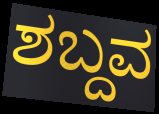
ಶಬ್ದವ